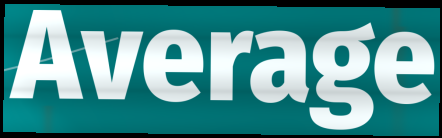
Average